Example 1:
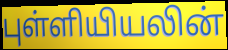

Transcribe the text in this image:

புள்ளியியலின்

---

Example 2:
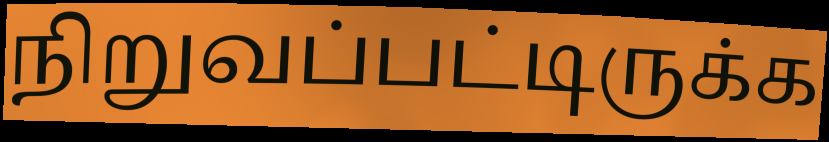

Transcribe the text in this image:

நிறுவப்பட்டிருக்க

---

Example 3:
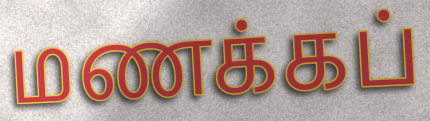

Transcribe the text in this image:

மணக்கப்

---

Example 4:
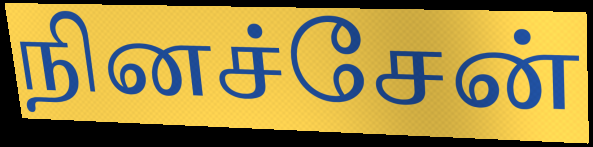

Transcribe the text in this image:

நினச்சேன்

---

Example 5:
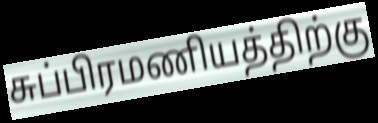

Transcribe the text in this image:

சுப்பிரமணியத்திற்கு